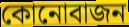
কোনোবাজন